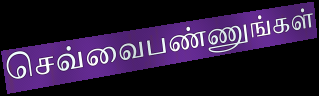
செவ்வைபண்ணுங்கள்